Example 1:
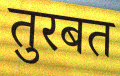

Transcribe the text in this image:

तुरबत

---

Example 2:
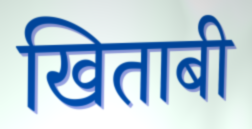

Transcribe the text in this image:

खिताबी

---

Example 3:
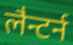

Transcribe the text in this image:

लैन्टर्न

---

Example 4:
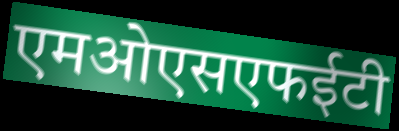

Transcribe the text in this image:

एमओएसएफईटी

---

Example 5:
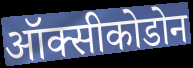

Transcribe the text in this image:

ऑक्सीकोडोन